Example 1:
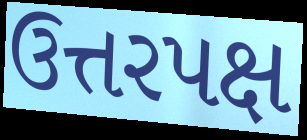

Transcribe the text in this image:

ઉત્તરપક્ષ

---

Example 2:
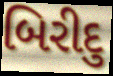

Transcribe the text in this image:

બિરીદુ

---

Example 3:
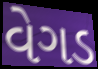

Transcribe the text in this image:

વેગડ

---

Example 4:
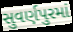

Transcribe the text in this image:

સુવર્ણપુરમાં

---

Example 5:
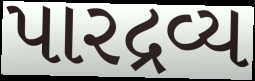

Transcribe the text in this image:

પારદ્રવ્ય